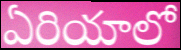
ఏరియాలో